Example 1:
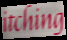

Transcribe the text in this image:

itching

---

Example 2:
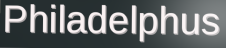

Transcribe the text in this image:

Philadelphus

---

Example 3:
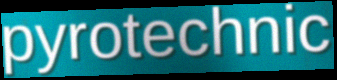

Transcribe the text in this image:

pyrotechnic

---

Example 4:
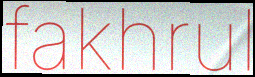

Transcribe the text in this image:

fakhrul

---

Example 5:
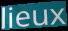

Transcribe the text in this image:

lieux